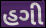
હગી